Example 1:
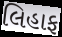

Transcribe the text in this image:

લિહાફ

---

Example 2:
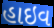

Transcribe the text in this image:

હાઇવ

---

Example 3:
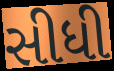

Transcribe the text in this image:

સીધી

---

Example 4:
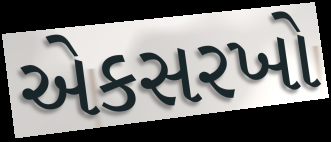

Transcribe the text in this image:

એકસરખો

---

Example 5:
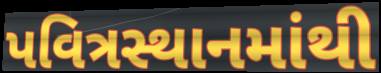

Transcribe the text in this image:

પવિત્રસ્થાનમાંથી